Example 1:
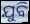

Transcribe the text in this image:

ଯୁବି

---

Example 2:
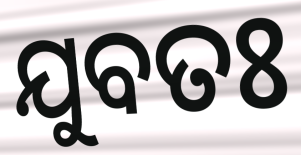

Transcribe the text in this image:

ଯୁବତଃ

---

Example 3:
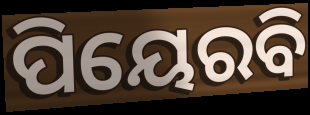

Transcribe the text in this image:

ପିୟେରବି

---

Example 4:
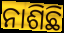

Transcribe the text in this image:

ନାଶିଛି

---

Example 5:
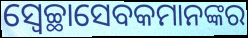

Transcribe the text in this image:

ସ୍ୱେଚ୍ଛାସେବକମାନଙ୍କର